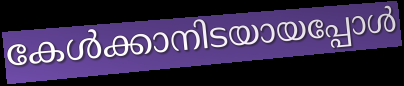
കേൾക്കാനിടയായപ്പോൾ